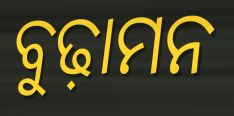
ବୁଢ଼ାମନ